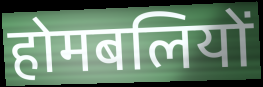
होमबलियों